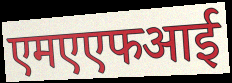
एमएएफआई